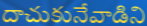
దాచుకునేవాడిని